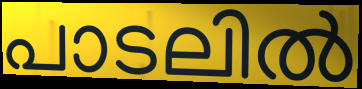
പാടലിൽ